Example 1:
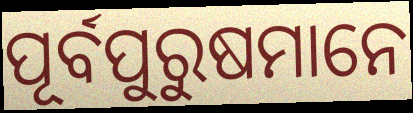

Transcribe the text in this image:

ପୂର୍ବପୁରୁଷମାନେ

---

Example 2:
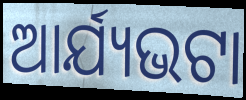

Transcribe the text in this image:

ଆର୍ଯ୍ୟଭଟା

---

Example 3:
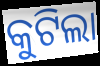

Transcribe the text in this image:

କୁଟିଲା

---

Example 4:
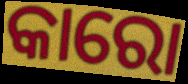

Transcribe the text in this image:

କାରୋ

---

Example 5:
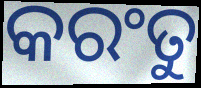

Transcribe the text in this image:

କରଂତୁ